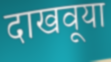
दाखवूया